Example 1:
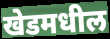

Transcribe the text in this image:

खेडमधील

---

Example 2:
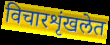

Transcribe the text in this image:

विचारशृंखलेत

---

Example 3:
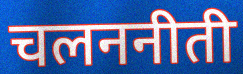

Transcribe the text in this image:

चलननीती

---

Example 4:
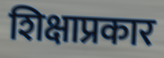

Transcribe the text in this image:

शिक्षाप्रकार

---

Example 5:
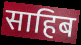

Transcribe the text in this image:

साहिब